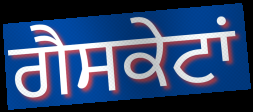
ਗੈਸਕੇਟਾਂ